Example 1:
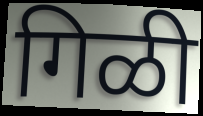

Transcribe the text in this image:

गिळी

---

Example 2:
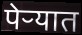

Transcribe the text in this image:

पेऱ्यात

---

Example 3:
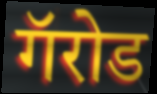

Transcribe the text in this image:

गॅरोड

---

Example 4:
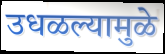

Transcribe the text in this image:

उधळल्यामुळे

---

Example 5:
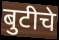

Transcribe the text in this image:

बुटीचे